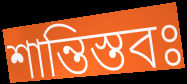
শান্তিস্তবঃ